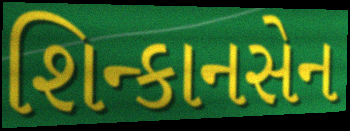
શિન્કાનસેન